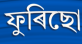
ফুৰিছো